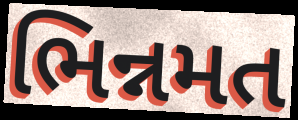
ભિન્નમત